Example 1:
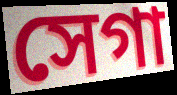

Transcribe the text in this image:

সেগা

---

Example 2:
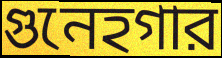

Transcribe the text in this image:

গুনেহগার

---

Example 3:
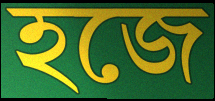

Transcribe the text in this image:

হজে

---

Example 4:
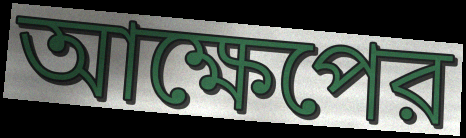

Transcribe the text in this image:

আক্ষেপের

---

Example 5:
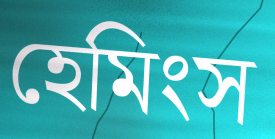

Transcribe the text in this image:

হেমিংস